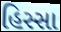
હિસ્સા